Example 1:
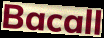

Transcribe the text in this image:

Bacall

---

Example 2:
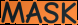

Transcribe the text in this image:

MASK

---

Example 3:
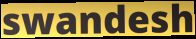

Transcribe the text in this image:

swandesh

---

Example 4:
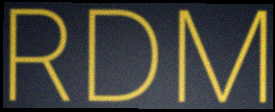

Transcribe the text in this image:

RDM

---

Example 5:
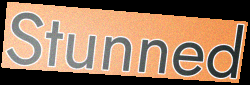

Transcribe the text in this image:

Stunned